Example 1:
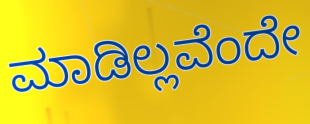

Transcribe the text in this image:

ಮಾಡಿಲ್ಲವೆಂದೇ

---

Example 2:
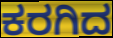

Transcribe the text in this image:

ಕರಗಿದ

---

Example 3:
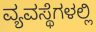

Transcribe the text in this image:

ವ್ಯವಸ್ಥೆಗಳಲ್ಲಿ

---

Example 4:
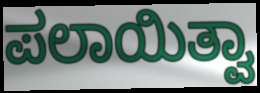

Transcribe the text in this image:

ಪಲಾಯಿತ್ವಾ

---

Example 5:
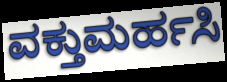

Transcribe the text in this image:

ವಕ್ತುಮರ್ಹಸಿ